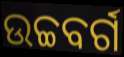
ଉଚ୍ଚବର୍ଗ